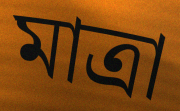
মাত্রা